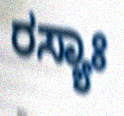
ರಸ್ಯಾಃ